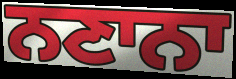
ਨਣਾਨਾ